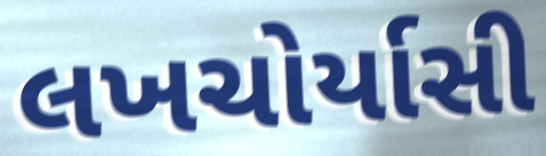
લખચોર્યાસી